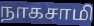
நாகசாமி